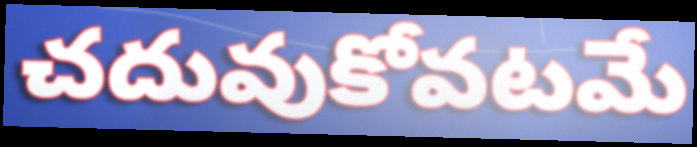
చదువుకోవటమే